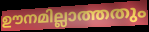
ഊനമില്ലാത്തതും